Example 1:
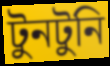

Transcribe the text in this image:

টুনটুনি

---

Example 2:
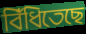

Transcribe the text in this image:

বিঁধিতেছে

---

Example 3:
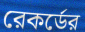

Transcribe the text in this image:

রেকর্ডের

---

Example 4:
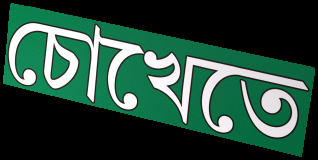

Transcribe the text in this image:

চোখেতে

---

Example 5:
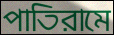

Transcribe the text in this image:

পাতিরামে